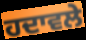
ਹਦਾਵਲੇ